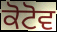
ਕੋਟੋਵ